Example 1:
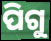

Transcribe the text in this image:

ପିଗୁ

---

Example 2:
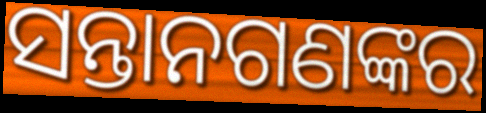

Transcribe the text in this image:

ସନ୍ତାନଗଣଙ୍କର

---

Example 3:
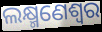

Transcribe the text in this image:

ଲକ୍ଷ୍ମଣେଶ୍ୱର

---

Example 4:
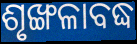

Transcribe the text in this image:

ଶୃଙ୍ଖଳାବଦ୍ଧ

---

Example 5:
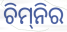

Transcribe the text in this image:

ଚିମ୍‌ନିର